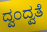
ದ್ವಂದ್ವತೆ